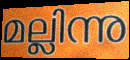
മല്ലിന്നു